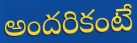
అందరికంటే